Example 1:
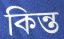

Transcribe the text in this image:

কিন্ত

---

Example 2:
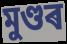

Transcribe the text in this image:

মুণ্ডৰ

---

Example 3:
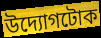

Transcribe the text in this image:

উদ্যোগটোক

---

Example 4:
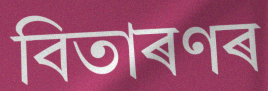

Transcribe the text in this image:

বিতাৰণৰ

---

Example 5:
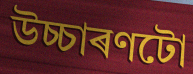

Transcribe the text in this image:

উচ্চাৰণটো